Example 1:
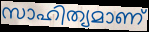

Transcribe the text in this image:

സാഹിത്യമാണ്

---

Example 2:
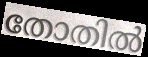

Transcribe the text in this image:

തോതിൽ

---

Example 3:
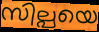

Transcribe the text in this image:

സില്പയെ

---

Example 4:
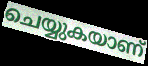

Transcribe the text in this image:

ചെയ്യുകയാണ്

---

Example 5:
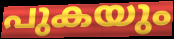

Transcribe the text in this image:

പുകയും